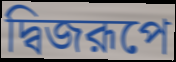
দ্বিজরূপে